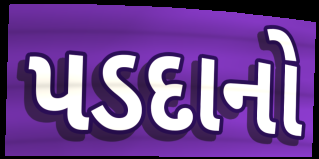
પડદાનો